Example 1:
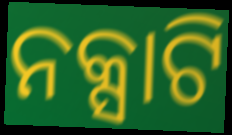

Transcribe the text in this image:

ନକ୍ସାଟି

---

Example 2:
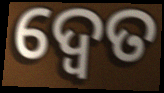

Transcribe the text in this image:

ଦ୍ବେତ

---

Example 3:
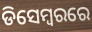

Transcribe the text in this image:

ଡିସେମ୍ବରରେ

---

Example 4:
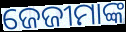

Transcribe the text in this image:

ଜେଜୀମାଙ୍କ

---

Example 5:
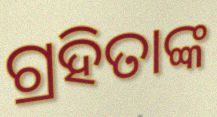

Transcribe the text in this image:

ଗ୍ରହିତାଙ୍କ